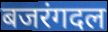
बजरंगदल